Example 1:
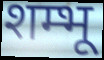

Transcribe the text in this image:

शम्भू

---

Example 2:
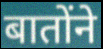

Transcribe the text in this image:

बातोंने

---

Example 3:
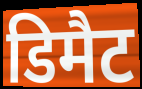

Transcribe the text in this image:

डिमैट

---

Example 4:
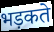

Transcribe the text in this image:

भड़कते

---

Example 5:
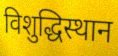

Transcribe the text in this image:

विशुद्धिस्थान